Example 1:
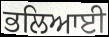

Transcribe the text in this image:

ਭਲਿਆਈ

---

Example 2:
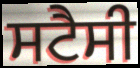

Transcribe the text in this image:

ਸਟੈਸੀ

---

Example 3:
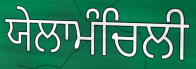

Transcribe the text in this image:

ਯੇਲਾਮੰਚਿਲੀ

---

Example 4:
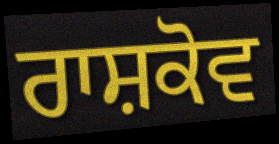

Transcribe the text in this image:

ਰਾਸ਼ਕੋਵ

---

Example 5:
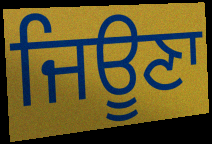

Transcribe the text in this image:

ਜਿਊਣਾ